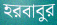
হরবাবুর